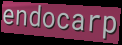
endocarp